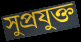
সুপ্রযুক্ত